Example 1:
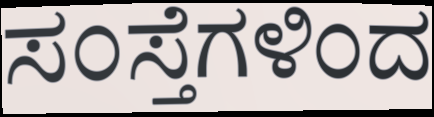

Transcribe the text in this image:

ಸಂಸ್ತೆಗಳಿಂದ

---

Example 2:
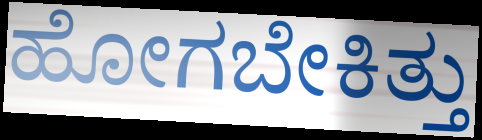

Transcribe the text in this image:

ಹೋಗಬೇಕಿತ್ತು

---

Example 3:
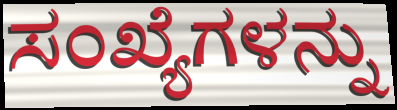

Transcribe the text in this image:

ಸಂಖ್ಯೆಗಳನ್ನು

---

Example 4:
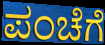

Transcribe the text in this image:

ಪಂಚೆಗೆ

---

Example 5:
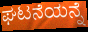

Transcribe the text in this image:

ಘಟನೆಯನ್ನೆ